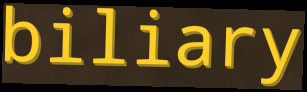
biliary